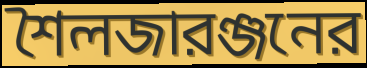
শৈলজারঞ্জনের